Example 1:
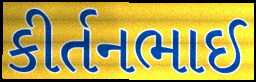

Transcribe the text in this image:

કીર્તનભાઈ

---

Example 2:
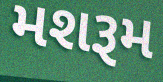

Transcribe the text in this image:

મશરૂમ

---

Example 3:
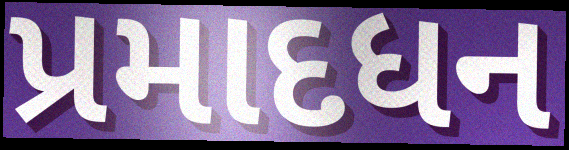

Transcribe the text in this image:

પ્રમાદધન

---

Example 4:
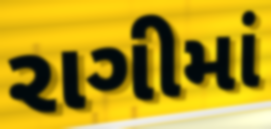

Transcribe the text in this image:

રાગીમાં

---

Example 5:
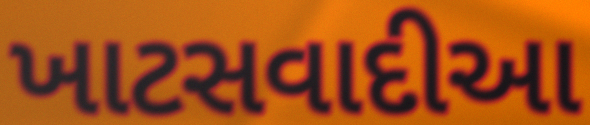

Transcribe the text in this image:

ખાટસવાદીઆ